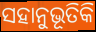
ସହାନୁଭୂତିକି